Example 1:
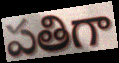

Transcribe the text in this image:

పతిగా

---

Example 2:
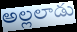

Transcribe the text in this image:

అల్లలాడు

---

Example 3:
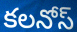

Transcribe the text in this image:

కలనోస్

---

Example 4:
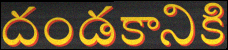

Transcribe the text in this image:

దండకానికి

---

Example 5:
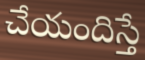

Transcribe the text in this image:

చేయందిస్తే